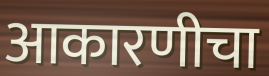
आकारणीचा